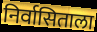
निर्वासिताला